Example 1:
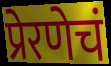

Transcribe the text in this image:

प्रेरणेचं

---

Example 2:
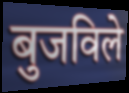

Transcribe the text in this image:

बुजविले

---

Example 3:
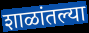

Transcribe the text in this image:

शाळांतल्या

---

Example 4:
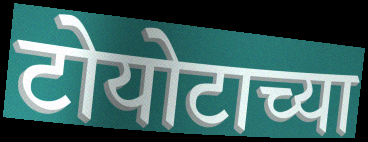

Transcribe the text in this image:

टोयोटाच्या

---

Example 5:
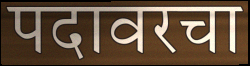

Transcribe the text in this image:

पदावरचा